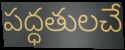
పద్ధతులచే